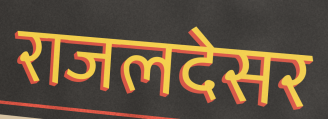
राजलदेसर